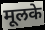
मूलके